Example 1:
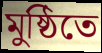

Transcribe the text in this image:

মুষ্ঠিতে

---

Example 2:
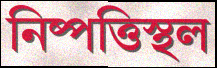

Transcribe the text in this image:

নিষ্পত্তিস্থল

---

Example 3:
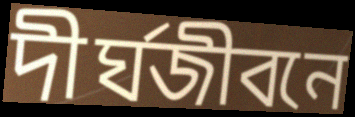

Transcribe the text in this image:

দীর্ঘজীবনে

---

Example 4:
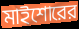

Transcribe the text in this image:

মাইশোরের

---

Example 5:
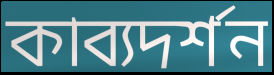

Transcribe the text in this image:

কাব্যদর্শন